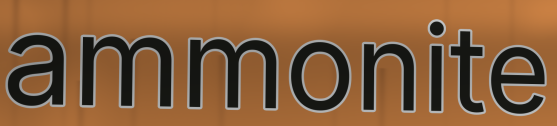
ammonite